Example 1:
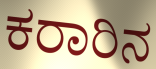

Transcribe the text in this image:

ಕರಾರಿನ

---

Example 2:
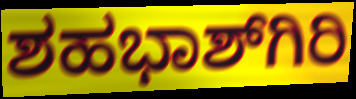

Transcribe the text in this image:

ಶಹಭಾಶ್‌ಗಿರಿ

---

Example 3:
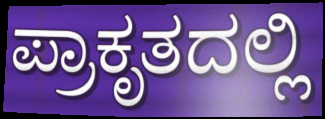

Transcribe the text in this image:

ಪ್ರಾಕೃತದಲ್ಲಿ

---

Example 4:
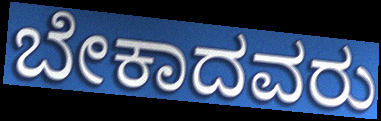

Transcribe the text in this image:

ಬೇಕಾದವರು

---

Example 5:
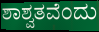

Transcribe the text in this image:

ಶಾಶ್ವತವೆಂದು